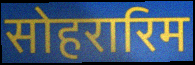
सोहरारिम